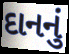
દાનનું